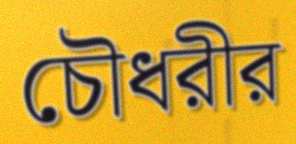
চৌধরীর